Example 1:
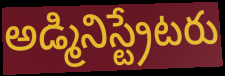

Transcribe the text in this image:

అడ్మినిస్ట్రేటరు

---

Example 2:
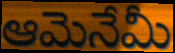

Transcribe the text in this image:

ఆమెనేమీ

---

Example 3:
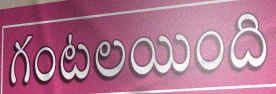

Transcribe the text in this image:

గంటలయింది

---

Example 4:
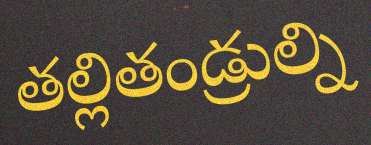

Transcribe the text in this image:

తల్లితండ్రుల్ని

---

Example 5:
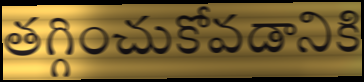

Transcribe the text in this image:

తగ్గించుకోవడానికి